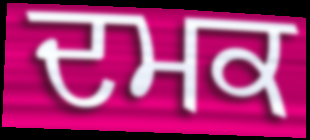
ਦਮਕ